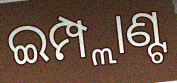
ଇମ୍ପ୍ଲାଣ୍ଟ